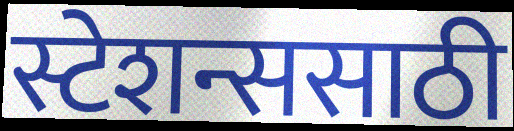
स्टेशन्ससाठी